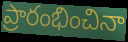
ప్రారంభించినా